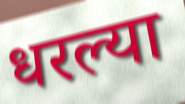
धरल्या